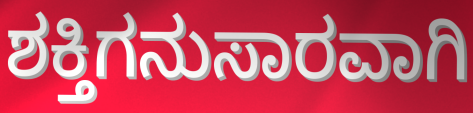
ಶಕ್ತಿಗನುಸಾರವಾಗಿ